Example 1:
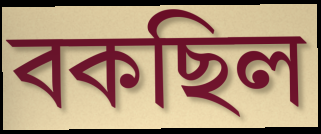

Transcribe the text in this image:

বকছিল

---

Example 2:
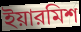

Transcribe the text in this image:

ইয়ারমিশ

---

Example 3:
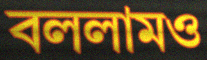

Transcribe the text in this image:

বললামও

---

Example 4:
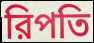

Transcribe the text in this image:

রিপতি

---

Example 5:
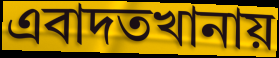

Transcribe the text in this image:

এবাদতখানায়